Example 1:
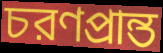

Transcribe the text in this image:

চরণপ্রান্ত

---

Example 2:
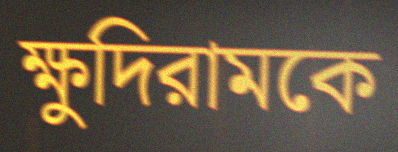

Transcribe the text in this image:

ক্ষুদিরামকে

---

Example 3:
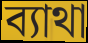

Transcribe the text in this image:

ব্যাথা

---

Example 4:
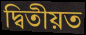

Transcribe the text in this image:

দ্বিতীয়ত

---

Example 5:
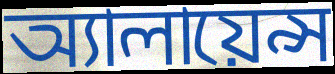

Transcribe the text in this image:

অ্যালায়েন্স